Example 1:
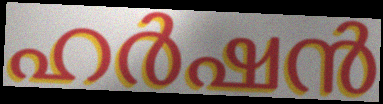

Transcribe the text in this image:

ഹർഷൻ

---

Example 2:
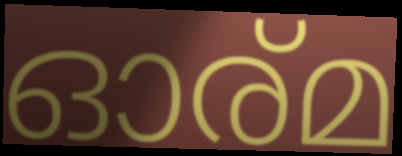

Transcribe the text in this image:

ഓര്മ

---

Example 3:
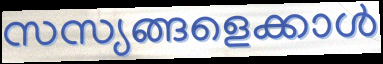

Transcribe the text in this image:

സസ്യങ്ങളെക്കാൾ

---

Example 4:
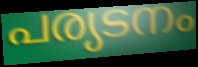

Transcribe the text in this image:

പര്യടനം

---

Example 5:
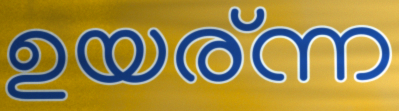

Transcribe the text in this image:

ഉയര്ന്ന